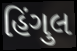
હિંગુલ